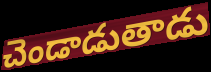
చెండాడుతాడు